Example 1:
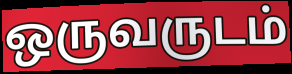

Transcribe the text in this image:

ஒருவருடம்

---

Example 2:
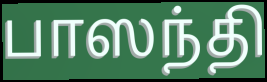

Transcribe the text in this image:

பாஸந்தி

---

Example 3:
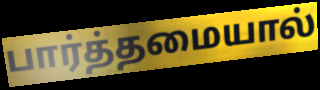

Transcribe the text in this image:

பார்த்தமையால்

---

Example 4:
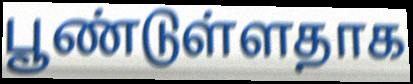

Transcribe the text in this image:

பூண்டுள்ளதாக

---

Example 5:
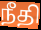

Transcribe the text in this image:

நீதி